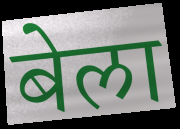
बेला